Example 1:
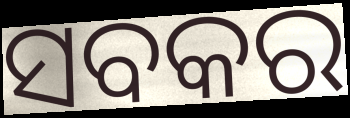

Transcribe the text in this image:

ସବକର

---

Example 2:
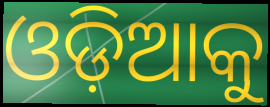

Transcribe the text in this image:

ଓଡ଼ିଆକୁ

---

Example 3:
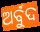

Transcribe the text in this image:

ଅର୍ବୁଦ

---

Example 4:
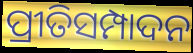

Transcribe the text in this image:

ପ୍ରୀତିସମ୍ପାଦନ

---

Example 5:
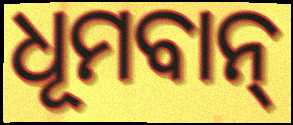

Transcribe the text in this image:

ଧୂମବାନ୍